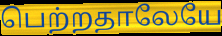
பெற்றதாலேயே